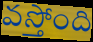
వస్తోంది